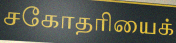
சகோதரியைக்